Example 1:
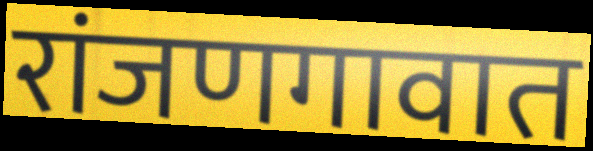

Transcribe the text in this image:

रांजणगावात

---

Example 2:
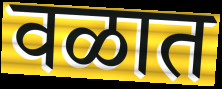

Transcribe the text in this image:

वळात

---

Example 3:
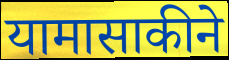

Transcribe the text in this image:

यामासाकीने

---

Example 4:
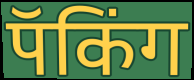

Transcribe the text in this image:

पॅकिंग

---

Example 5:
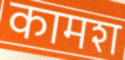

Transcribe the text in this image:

कामश